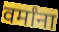
वर्मांना